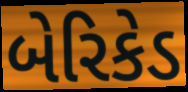
બેરિકેડ